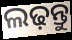
ଲଢ଼ନ୍ତୁ